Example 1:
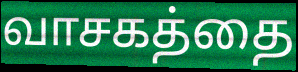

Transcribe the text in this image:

வாசகத்தை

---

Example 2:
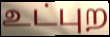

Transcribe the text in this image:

உட்புற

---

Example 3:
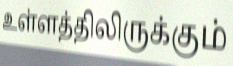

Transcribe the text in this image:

உள்ளத்திலிருக்கும்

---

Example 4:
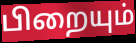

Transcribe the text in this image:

பிறையும்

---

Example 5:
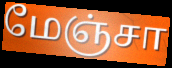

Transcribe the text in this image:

மேஞ்சா